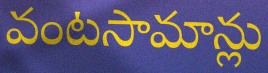
వంటసామాన్లు